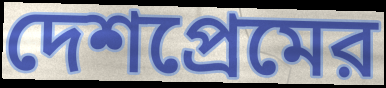
দেশপ্রেমের